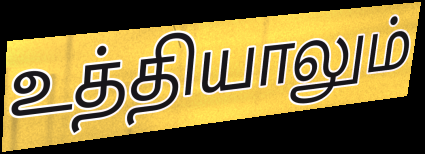
உத்தியாலும்